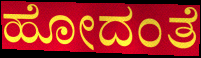
ಹೋದಂತೆ